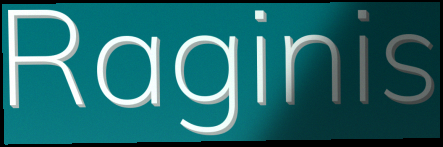
Raginis